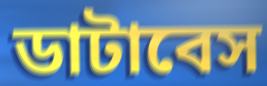
ডাটাবেস